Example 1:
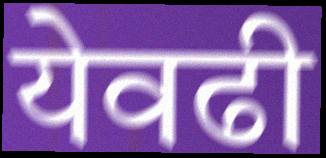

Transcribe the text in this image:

येवढी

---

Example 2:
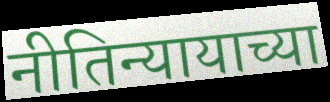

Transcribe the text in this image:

नीतिन्यायाच्या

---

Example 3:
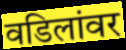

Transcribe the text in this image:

वडिलांवर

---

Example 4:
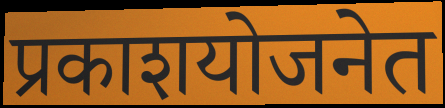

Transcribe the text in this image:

प्रकाशयोजनेत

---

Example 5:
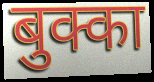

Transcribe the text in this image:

बुक्का